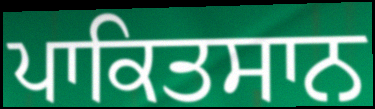
ਪਾਕਿਤਸਾਨ